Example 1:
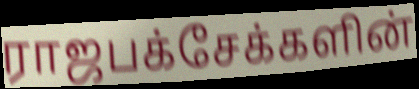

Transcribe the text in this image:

ராஜபக்சேக்களின்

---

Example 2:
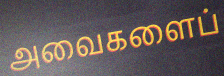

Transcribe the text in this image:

அவைகளைப்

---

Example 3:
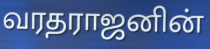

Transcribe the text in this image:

வரதராஜனின்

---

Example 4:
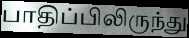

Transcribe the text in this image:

பாதிப்பிலிருந்து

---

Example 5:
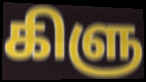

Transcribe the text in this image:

கிளு